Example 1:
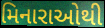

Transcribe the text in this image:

મિનારાઓથી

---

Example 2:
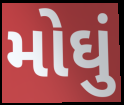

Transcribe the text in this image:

મોઘું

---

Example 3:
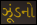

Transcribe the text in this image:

ઝૂંડનો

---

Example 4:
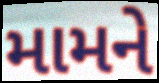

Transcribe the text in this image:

મામને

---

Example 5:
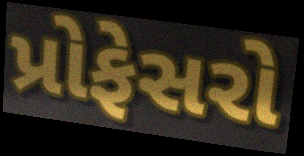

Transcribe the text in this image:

પ્રોફેસરો